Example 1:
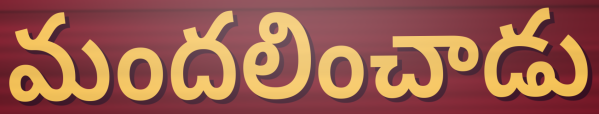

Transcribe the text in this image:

మందలించాడు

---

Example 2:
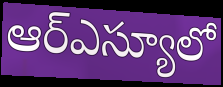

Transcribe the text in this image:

ఆర్ఎస్యూలో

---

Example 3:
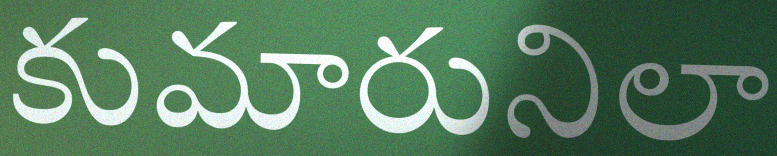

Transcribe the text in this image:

కుమారునిలా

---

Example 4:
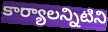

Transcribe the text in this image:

కార్యాలన్నిటిని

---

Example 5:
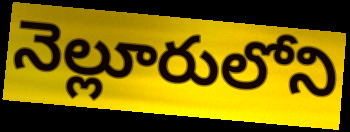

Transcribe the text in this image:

నెల్లూరులోని